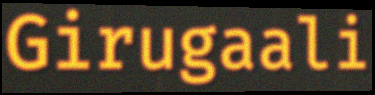
Girugaali